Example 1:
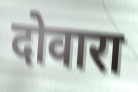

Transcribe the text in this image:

दोवारा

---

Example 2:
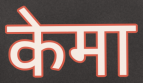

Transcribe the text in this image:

केमा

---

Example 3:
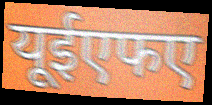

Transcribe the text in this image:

यूईएफए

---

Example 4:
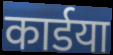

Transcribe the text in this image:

कार्डया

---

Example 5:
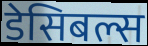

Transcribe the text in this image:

डेसिबल्स